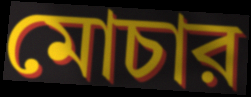
মোচার